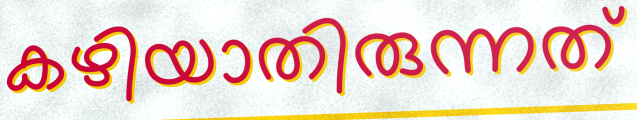
കഴിയാതിരുന്നത്